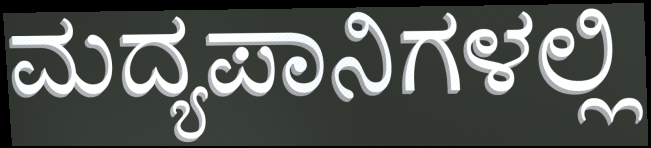
ಮದ್ಯಪಾನಿಗಳಲ್ಲಿ